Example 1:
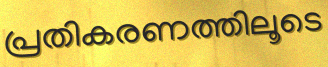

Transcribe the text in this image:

പ്രതികരണത്തിലൂടെ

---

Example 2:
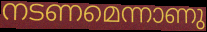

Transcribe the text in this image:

നടണമെന്നാണു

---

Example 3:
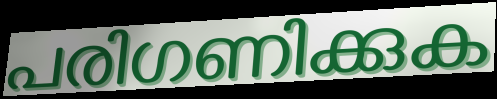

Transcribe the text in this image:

പരിഗണിക്കുക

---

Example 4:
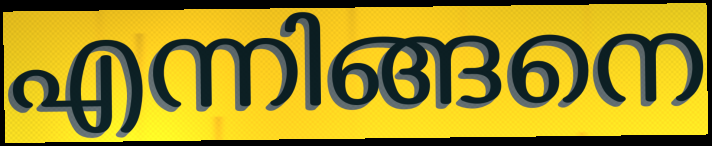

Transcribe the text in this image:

എന്നിങ്ങനെ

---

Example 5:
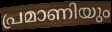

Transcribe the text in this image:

പ്രമാണിയും